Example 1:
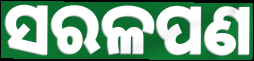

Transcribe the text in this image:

ସରଳପଣ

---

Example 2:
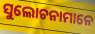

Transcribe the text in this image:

ସୁଲୋଚନାମାନେ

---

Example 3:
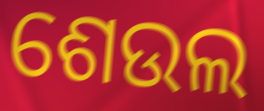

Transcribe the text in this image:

ଶେଉଲ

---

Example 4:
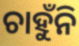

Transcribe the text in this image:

ଚାହୁଁନି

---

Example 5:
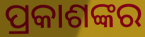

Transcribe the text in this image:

ପ୍ରକାଶଙ୍କର